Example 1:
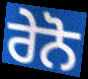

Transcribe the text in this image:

ਰੇਨੋ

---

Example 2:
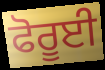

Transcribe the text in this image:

ਫੋਰੂਈ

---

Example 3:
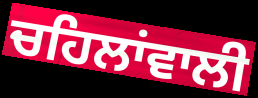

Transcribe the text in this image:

ਚਹਿਲਾਂਵਾਲੀ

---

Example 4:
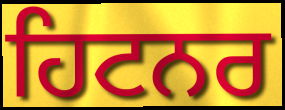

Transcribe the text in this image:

ਹਿਟਨਰ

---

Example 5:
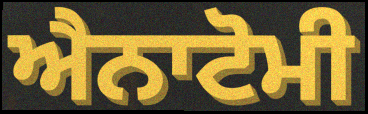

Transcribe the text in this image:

ਐਨਾਟੋਮੀ